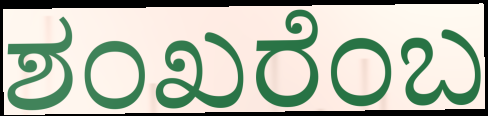
ಶಂಖರೆಂಬ